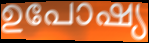
ഉപോഷ്യ